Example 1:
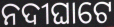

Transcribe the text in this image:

ନଦୀଘାଟେ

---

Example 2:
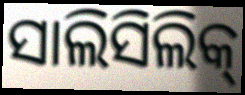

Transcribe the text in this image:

ସାଲିସିଲିକ୍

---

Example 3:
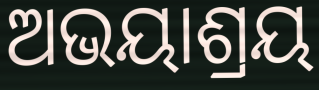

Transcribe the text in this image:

ଅଭୟାଶ୍ରୟ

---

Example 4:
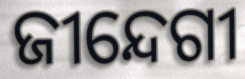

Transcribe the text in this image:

ଜୀନ୍ଦେଗୀ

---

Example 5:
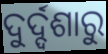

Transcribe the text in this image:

ଦୁର୍ଦ୍ଦଶାରୁ